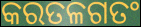
କରତଳଗତଂ